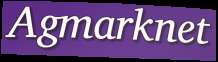
Agmarknet